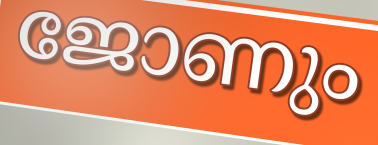
ജോണും